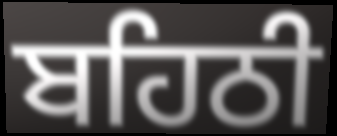
ਬਹਿਠੀ